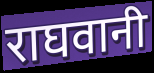
राघवानी